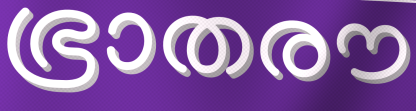
ഭ്രാതരൗ